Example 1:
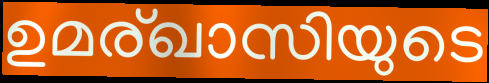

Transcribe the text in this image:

ഉമര്ഖാസിയുടെ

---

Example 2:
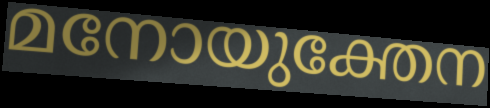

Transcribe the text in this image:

മനോയുക്തേന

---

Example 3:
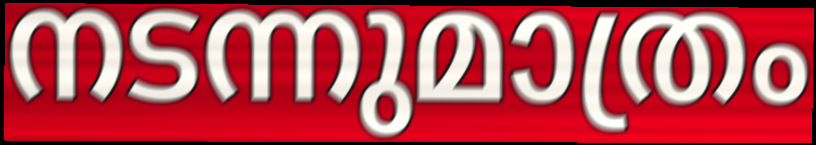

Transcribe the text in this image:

നടന്നുമാത്രം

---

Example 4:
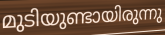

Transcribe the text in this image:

മുടിയുണ്ടായിരുന്നു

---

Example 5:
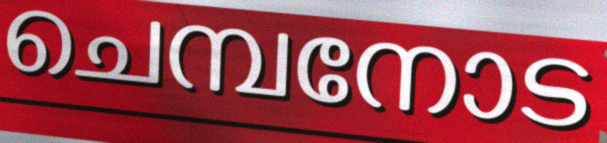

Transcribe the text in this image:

ചെമ്പനോട